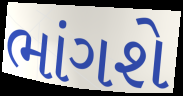
ભાંગશે